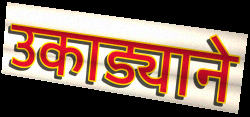
उकाड्याने